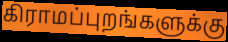
கிராமப்புறங்களுக்கு